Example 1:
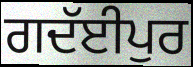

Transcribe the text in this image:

ਗਦੱਈਪੁਰ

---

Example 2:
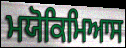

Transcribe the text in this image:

ਮਯੋਕਿਮਿਆਸ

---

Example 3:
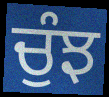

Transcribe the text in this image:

ਚੁੰਝ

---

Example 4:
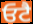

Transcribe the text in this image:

ਓਟੈ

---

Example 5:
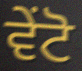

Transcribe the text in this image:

ਵੇਂਟੋ